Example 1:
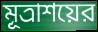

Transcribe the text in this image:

মূত্রাশয়ের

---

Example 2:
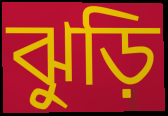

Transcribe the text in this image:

ঝুড়ি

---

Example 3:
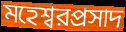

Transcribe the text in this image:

মহেশ্বরপ্রসাদ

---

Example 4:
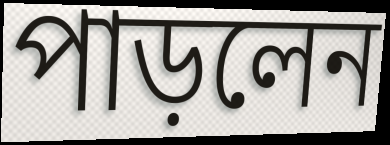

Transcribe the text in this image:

পাড়লেন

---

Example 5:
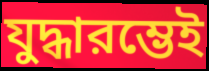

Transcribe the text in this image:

যুদ্ধারম্ভেই